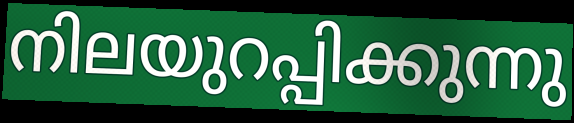
നിലയുറപ്പിക്കുന്നു